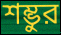
শম্ভুর